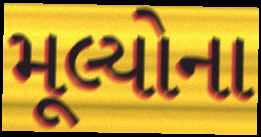
મૂલ્યોના